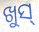
ଖୁସ୍